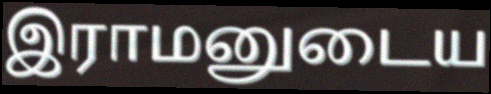
இராமனுடைய